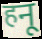
हनू